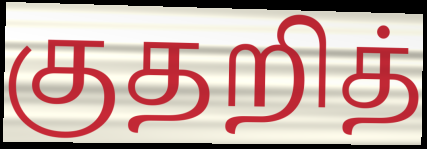
குதறித்